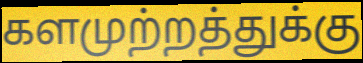
களமுற்றத்துக்கு